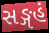
સઙ્ગહં